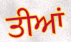
ਤੀਆਂ